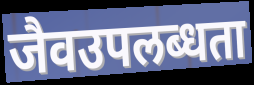
जैवउपलब्धता